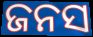
ଜନସ